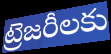
ట్రెజరీలకు